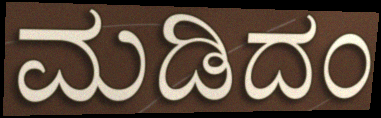
ಮಡಿದಂ